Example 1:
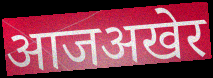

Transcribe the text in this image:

आजअखेर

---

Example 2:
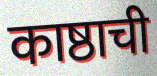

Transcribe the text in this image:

काष्ठाची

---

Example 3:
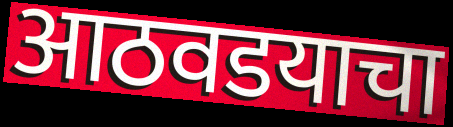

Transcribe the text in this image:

आठवडयाचा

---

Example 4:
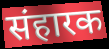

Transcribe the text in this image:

संहारक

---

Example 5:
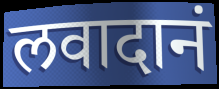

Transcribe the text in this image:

लवादानं